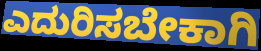
ಎದುರಿಸಬೇಕಾಗಿ